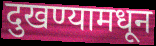
दुखण्यामधून